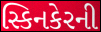
સ્કિનકેરની